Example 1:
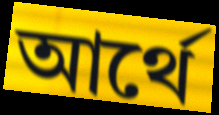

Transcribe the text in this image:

আর্থে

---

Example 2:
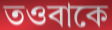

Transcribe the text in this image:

তওবাকে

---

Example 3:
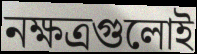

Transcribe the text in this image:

নক্ষত্রগুলোই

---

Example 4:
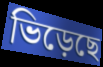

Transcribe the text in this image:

ভিড়েছে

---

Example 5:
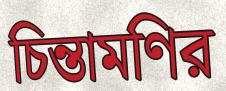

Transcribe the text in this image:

চিন্তামণির